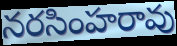
నరసింహరావు